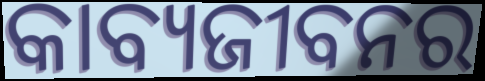
କାବ୍ୟଜୀବନର